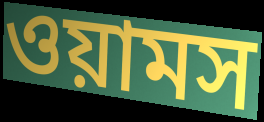
ওয়ামস